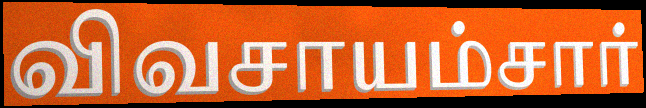
விவசாயம்சார்